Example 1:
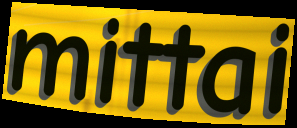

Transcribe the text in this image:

mittai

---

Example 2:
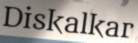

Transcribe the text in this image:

Diskalkar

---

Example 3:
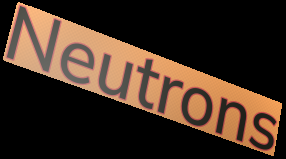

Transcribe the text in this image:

Neutrons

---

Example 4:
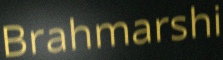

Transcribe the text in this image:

Brahmarshi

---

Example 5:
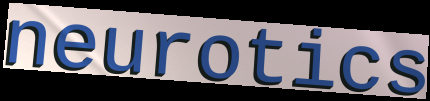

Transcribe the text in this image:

neurotics